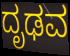
ದೃಢವ